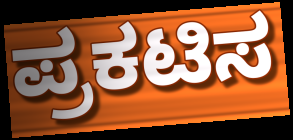
ಪ್ರಕಟಿಸ